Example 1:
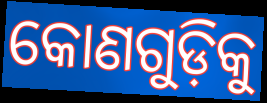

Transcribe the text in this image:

କୋଣଗୁଡ଼ିକୁ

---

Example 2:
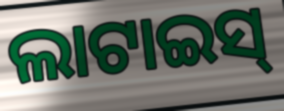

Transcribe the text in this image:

ଲାଟାଇସ୍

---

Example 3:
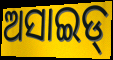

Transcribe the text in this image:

ଅସାଇଡ୍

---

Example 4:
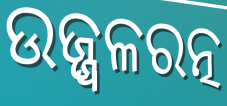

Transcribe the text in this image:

ଉଜ୍ଜ୍ୱଳରତ୍ନ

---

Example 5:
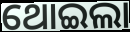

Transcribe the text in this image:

ଥୋଇଲା